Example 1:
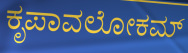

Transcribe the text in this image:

ಕೃಪಾವಲೋಕಮ್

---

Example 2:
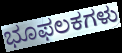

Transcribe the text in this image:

ಭೂಫಲಕಗಳು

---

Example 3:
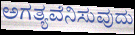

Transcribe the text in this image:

ಅಗತ್ಯವೆನಿಸುವುದು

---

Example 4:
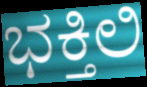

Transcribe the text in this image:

ಭಕ್ತಿಲಿ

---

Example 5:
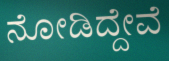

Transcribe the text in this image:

ನೋಡಿದ್ದೇವೆ